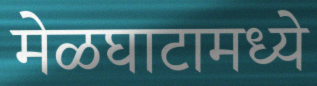
मेळघाटामध्ये